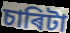
চাৰিটা